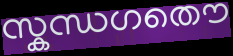
സ്കന്ധഗതൌ